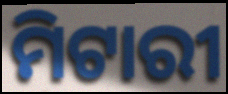
ମିଟାରୀ